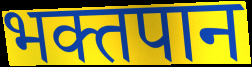
भक्तपान